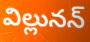
విల్లునన్